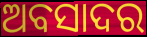
ଅବସାଦର